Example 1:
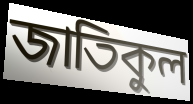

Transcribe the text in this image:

জাতিকুল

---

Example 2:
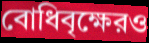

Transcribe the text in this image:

বোধিবৃক্ষেরও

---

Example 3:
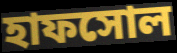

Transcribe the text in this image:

হাফসোল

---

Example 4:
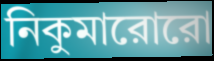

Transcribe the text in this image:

নিকুমারোরো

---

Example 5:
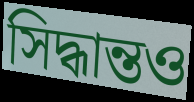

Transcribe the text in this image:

সিদ্ধান্তও